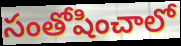
సంతోషించాలో